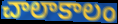
చాలాకాలం